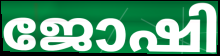
ജോഷി